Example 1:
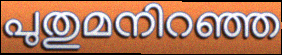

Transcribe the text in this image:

പുതുമനിറഞ്ഞ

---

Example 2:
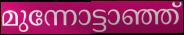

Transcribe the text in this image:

മുന്നോട്ടാഞ്ഞ്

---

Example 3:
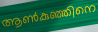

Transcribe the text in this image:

ആൺകുഞ്ഞിനെ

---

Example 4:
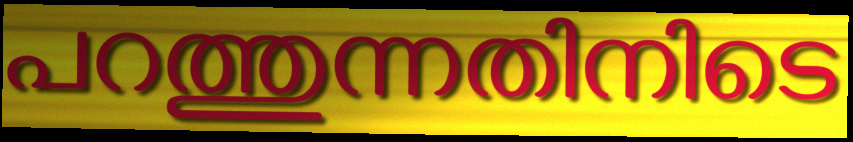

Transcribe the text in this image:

പറത്തുന്നതിനിടെ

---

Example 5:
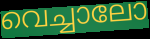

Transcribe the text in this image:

വെച്ചാലോ